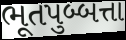
ભૂતપુબ્બત્તા